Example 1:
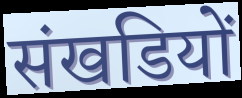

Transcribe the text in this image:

संखडियों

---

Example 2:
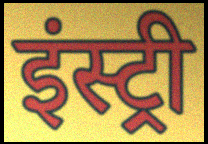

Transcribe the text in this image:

इंस्ट्री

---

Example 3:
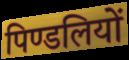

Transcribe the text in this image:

पिण्डलियों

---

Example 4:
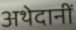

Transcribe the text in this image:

अथेदानीं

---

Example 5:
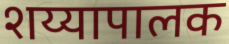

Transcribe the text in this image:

शय्यापालक